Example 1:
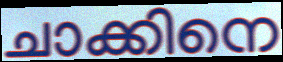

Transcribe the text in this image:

ചാക്കിനെ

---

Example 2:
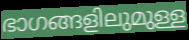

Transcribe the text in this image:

ഭാഗങ്ങളിലുമുള്ള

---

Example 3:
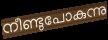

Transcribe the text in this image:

നീണ്ടുപോകുന്നു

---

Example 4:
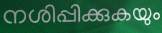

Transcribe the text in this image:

നശിപ്പിക്കുകയും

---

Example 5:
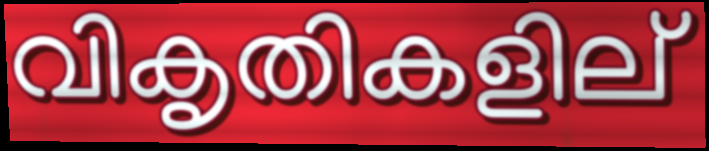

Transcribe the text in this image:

വികൃതികളില്